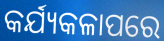
କର୍ଯ୍ୟକଳାପରେ